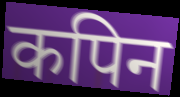
कपिन